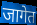
जागेत